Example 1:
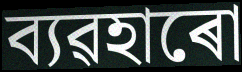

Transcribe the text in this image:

ব্যৱহাৰো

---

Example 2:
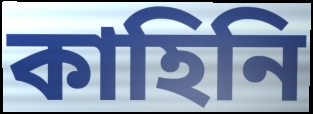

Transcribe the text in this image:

কাহিনি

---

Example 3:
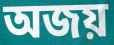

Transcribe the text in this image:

অজয়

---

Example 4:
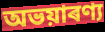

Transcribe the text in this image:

অভয়াৰণ্য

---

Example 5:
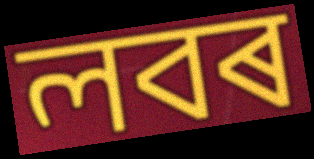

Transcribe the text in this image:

লবৰ